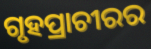
ଗୃହପ୍ରାଚୀରର